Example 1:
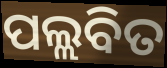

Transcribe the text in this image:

ପଲ୍ଲବିତ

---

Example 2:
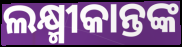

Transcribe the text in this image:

ଲକ୍ଷ୍ମୀକାନ୍ତଙ୍କ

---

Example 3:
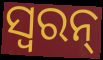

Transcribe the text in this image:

ସ୍ୱରନ୍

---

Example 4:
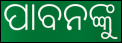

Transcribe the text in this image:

ପାବନଙ୍କୁ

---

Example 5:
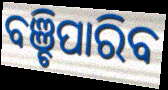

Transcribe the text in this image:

ବଞ୍ଚିପାରିବ